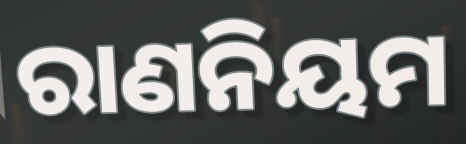
ରାଣନିୟମ